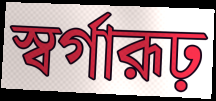
স্বর্গারূঢ়